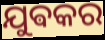
ଯୁଵକର